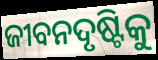
ଜୀବନଦୃଷ୍ଟିକୁ